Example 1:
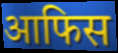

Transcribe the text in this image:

आफिस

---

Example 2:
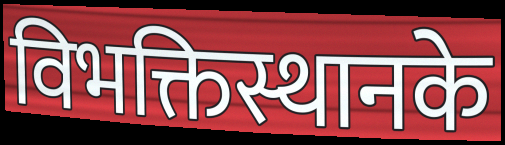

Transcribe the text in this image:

विभक्तिस्थानके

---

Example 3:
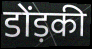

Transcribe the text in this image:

डोंड़की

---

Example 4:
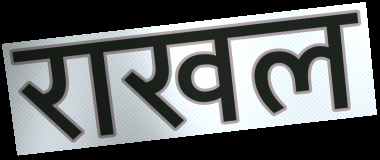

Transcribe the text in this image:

राखल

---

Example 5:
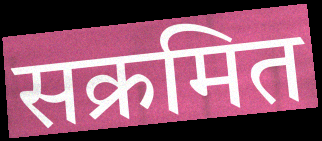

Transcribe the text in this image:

सक्रमित